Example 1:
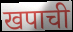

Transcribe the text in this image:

खपाची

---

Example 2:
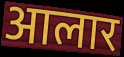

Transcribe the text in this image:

आलार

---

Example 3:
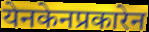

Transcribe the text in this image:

येनकेनप्रकारेन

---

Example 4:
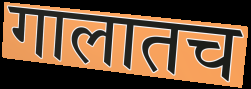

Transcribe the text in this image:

गालातच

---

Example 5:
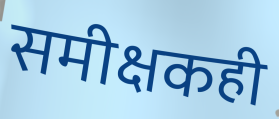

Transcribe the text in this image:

समीक्षकही